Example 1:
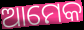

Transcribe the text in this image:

ଆମେକ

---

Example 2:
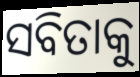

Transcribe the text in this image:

ସବିତାକୁ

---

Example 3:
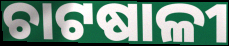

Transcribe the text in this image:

ଚାଟଷାଳୀ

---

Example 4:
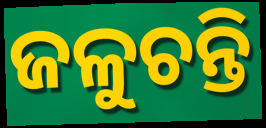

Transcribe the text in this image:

ଜଳୁଚନ୍ତି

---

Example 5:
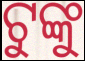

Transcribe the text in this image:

ଟୁଙ୍କୁ